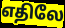
எதிலே